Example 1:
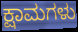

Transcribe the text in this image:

ಕ್ಷಾಮಗಳು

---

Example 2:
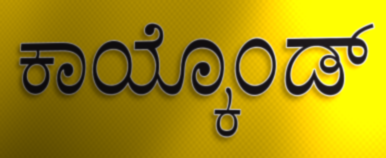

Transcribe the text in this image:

ಕಾಯ್ಕೊಂಡ್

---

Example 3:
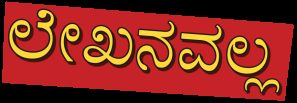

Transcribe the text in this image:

ಲೇಖನವಲ್ಲ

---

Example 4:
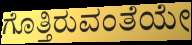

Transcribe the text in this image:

ಗೊತ್ತಿರುವಂತೆಯೇ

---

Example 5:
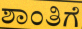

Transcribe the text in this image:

ಶಾಂತಿಗೆ